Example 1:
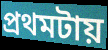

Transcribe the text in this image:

প্রথমটায়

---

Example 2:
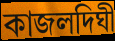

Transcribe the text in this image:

কাজলদিঘী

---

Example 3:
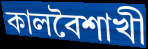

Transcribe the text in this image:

কালবৈশাখী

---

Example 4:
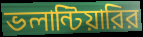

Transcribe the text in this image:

ভলান্টিয়ারির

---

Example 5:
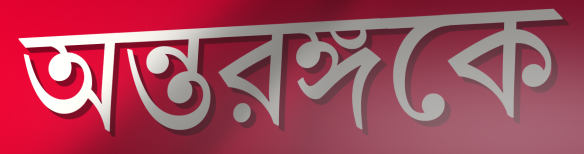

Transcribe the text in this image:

অন্তরঙ্গকে